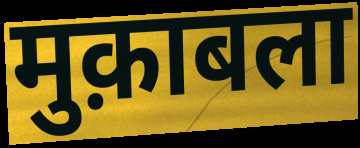
मुक़ाबला